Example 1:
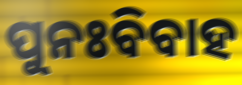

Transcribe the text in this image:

ପୁନଃବିବାହ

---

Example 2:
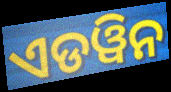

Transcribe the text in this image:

ଏଡୱିନ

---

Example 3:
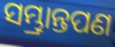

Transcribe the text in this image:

ସମ୍ଭ୍ରାନ୍ତପଣ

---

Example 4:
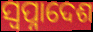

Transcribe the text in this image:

ସ୍ଵପ୍ନାଦେଶ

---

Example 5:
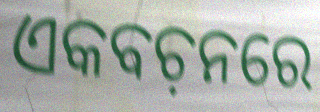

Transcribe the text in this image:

ଏକବଚ଼ନରେ